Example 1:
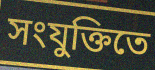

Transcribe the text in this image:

সংযুক্তিতে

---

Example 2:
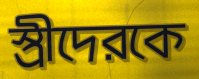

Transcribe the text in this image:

স্ত্রীদেরকে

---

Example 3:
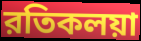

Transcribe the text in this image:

রতিকলয়া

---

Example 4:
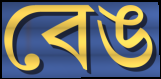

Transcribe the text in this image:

বেঙ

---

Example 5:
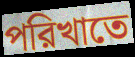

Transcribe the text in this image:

পরিখাতে